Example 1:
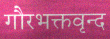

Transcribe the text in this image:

गौरभक्तवृन्द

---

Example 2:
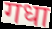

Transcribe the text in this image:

गधा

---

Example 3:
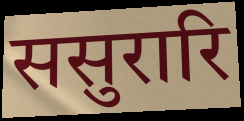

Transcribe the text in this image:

ससुरारि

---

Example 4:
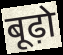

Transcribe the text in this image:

बूढ़ो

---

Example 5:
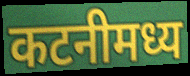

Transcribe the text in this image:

कटनीमध्य